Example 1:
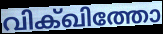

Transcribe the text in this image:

വിക്ഖിത്തോ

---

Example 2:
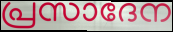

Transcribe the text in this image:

പ്രസാദേന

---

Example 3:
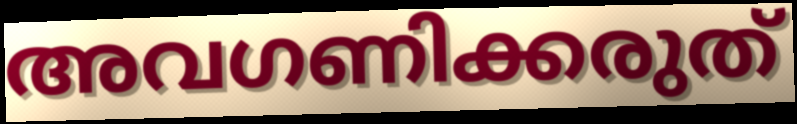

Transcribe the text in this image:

അവഗണിക്കരുത്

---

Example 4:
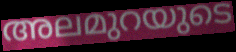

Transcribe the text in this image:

അലമുറയുടെ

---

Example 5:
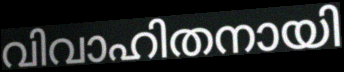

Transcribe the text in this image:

വിവാഹിതനായി